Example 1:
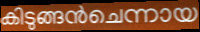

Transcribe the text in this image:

കിടുങ്ങൻചെന്നായ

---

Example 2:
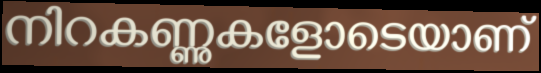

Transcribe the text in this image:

നിറകണ്ണുകളോടെയാണ്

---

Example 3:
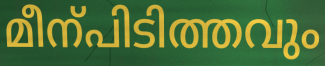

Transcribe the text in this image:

മീന്പിടിത്തവും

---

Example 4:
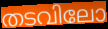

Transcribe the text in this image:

തടവിലോ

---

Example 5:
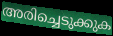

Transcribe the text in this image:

അരിച്ചെടുക്കുക